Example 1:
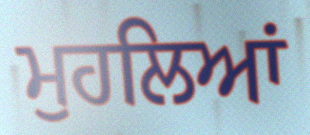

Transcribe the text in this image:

ਮੁਹਲਿਆਂ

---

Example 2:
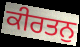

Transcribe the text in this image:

ਕੀਰਤਨੁ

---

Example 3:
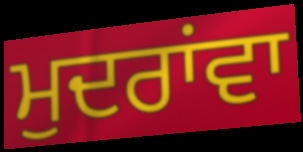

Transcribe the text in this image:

ਮੁਦਰਾਂਵਾ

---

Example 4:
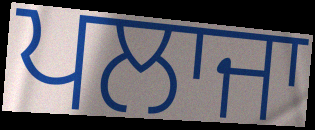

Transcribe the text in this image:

ਪਲਾਜਾ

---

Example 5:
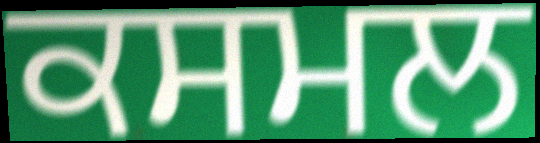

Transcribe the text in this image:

ਕਸਮਲ